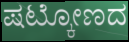
ಷಟ್ಕೋಣದ